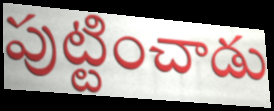
పుట్టించాడు